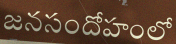
జనసందోహంలో